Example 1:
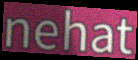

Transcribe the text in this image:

nehat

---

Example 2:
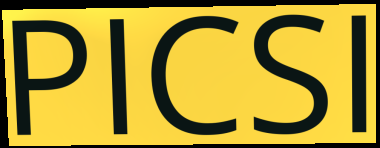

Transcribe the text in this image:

PICSI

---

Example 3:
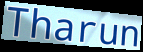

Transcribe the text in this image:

Tharun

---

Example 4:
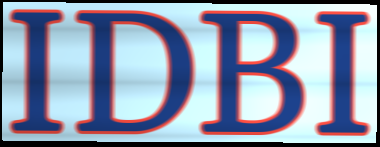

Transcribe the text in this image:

IDBI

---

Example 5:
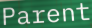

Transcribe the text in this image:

Parent